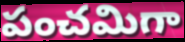
పంచమిగా